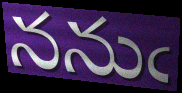
ననుఁ